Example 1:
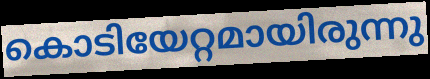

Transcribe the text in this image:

കൊടിയേറ്റമായിരുന്നു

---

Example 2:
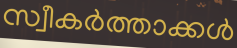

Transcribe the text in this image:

സ്വീകർത്താക്കൾ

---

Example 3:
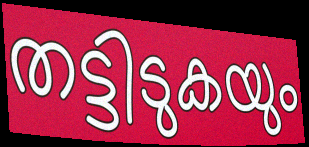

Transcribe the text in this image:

തട്ടിടുകയും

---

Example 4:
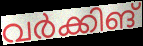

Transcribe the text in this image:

വർക്കിങ്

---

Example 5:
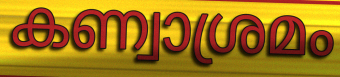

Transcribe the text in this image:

കണ്വാശ്രമം